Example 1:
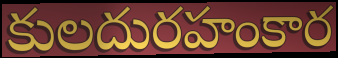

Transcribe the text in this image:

కులదురహంకార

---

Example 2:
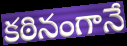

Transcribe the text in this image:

కఠినంగానే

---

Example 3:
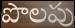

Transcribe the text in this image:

పొలపు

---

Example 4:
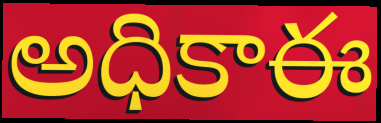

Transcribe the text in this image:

అధికాఈ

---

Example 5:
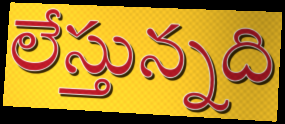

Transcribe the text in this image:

లేస్తున్నది